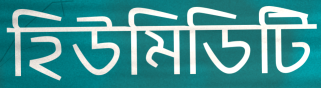
হিউমিডিটি